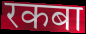
रकबा